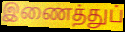
இணைத்துப்